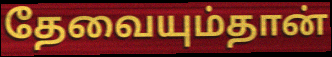
தேவையும்தான்